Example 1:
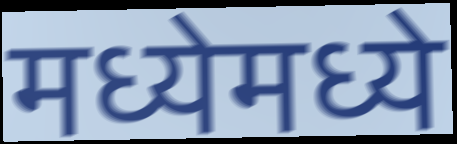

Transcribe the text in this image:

मध्येमध्ये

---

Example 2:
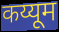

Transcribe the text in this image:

कय्यूम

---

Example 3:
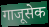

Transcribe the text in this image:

गाजूसेक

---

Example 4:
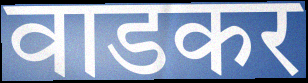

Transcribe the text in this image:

वाडकर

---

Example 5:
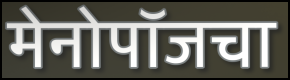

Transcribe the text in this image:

मेनोपॉजचा